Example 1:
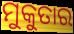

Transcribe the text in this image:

ମୁକୁତାର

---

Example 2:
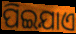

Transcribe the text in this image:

ପିଇଯାଏ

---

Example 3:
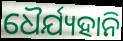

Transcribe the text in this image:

ଧୈର୍ଯ୍ୟହାନି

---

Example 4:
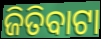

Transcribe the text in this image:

ଜିତିବାଟା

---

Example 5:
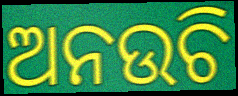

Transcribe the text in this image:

ଅନଉଚି